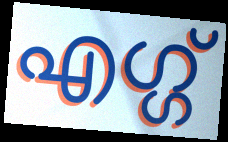
എഗ്ഗ്